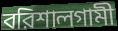
বরিশালগামী